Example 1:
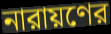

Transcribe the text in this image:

নারায়ণের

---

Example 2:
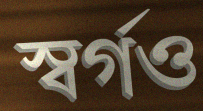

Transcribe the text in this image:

স্বর্গও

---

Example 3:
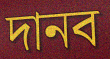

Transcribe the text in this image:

দানব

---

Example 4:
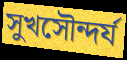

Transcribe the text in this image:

সুখসৌন্দর্য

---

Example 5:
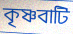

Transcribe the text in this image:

কৃষ্ণবাটি